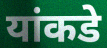
यांकडे